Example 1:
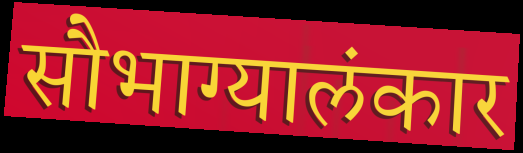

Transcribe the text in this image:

सौभाग्यालंकार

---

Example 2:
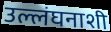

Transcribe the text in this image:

उल्लंघनाशी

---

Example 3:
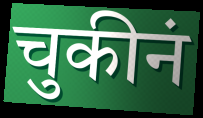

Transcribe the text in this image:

चुकीनं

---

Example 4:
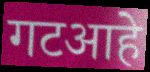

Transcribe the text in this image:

गटआहे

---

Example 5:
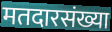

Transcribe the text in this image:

मतदारसंख्या